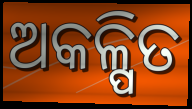
ଅକଳ୍ପିତ